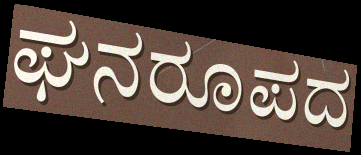
ಘನರೂಪದ